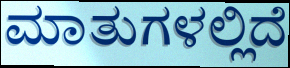
ಮಾತುಗಳಲ್ಲಿದೆ